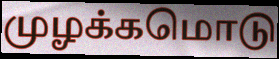
முழக்கமொடு